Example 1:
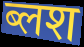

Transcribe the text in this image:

ब्लश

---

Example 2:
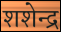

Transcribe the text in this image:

शशेन्द्र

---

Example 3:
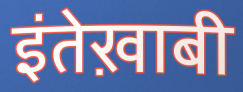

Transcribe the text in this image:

इंतेख़ाबी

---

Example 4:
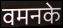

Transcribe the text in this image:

वमनके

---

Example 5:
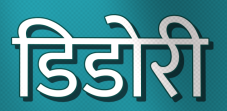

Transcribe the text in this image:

डिडोरी